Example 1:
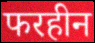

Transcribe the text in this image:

फरहीन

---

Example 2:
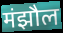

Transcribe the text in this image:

मंझौल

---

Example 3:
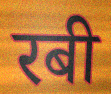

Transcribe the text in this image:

रबी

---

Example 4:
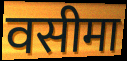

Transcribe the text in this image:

वसीमा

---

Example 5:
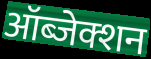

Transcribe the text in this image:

ऑब्‍जेक्‍शन